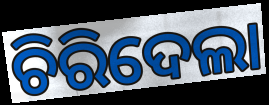
ଚିରିଦେଲା